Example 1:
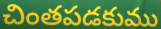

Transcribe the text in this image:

చింతపడకుము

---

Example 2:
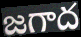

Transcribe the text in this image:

జగాద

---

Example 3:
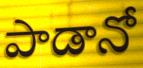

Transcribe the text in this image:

పాడానో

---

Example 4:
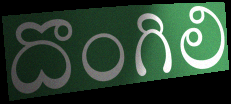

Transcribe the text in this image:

దొంగిలి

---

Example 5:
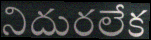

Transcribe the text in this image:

నిదురలేక